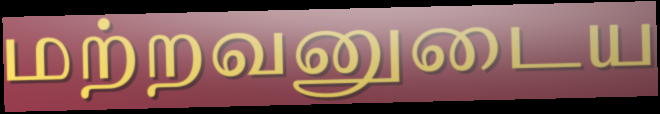
மற்றவனுடைய